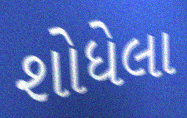
શોધેલા